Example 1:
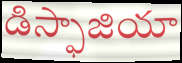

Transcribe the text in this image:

డిస్ఫాజియా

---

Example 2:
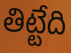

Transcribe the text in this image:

తిట్టేది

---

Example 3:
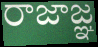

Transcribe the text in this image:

రాజాజ్ఞ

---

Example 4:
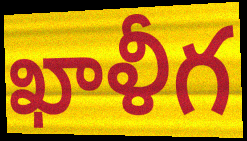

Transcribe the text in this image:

ఖాళీగ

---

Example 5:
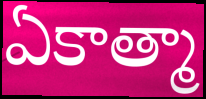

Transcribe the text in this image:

ఏకాత్మా